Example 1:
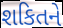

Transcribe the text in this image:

શકિતને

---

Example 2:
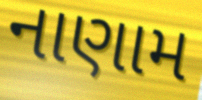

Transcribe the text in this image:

નાણામ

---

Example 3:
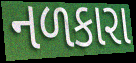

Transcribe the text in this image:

નળકારા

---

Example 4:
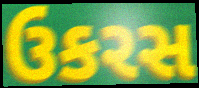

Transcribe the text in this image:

ઉકરસ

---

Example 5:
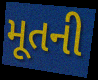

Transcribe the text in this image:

મૂતની